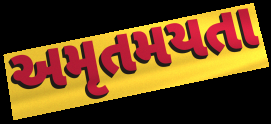
અમૃતમયતા